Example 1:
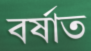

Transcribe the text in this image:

বৰ্ষাত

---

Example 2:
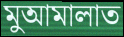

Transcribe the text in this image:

মুআমালাত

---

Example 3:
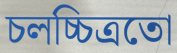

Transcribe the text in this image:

চলচ্চিত্ৰতো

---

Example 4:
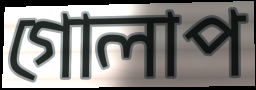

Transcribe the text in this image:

গোলাপ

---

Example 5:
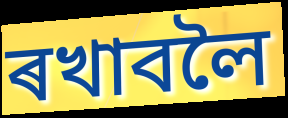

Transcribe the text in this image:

ৰখাবলৈ